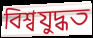
বিশ্বযুদ্ধত